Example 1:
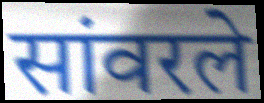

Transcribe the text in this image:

सांवरले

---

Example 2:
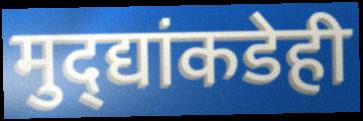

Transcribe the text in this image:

मुद्द्यांकडेही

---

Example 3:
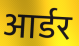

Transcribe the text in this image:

आर्डर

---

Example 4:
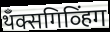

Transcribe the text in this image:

थॅँक्सगिव्हिंग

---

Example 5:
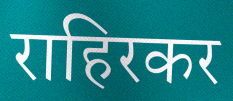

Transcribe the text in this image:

राहिरकर